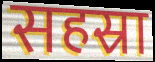
सहस्रा